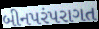
બીનપરંપરાગત